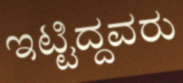
ಇಟ್ಟಿದ್ದವರು